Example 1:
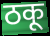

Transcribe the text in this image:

ठकू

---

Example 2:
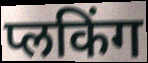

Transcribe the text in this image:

प्लकिंग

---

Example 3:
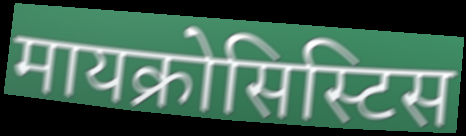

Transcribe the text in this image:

मायक्रोसिस्टिस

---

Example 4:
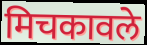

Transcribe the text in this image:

मिचकावले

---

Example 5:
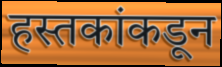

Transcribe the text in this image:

हस्तकांकडून